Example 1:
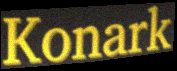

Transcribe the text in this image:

Konark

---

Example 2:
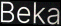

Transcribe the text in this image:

Beka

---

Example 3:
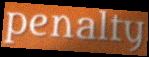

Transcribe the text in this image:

penalty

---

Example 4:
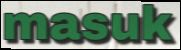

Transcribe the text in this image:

masuk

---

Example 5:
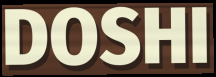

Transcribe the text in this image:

DOSHI